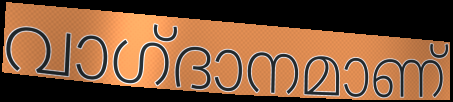
വാഗ്‌ദാനമാണ്